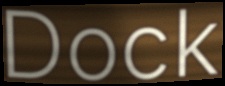
Dock